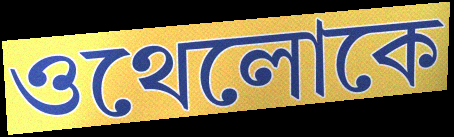
ওথেলোকে